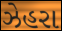
ઝેહરા